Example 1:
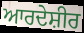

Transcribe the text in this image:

ਆਰਦੇਸ਼ੀਰ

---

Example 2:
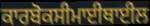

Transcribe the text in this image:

ਕਾਰਬੋਕਸੀਮਾਈਥਾਈਲ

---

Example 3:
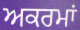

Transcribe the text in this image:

ਅਕਰਮਾਂ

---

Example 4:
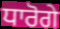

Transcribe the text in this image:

ਧਾਰੋਗੇ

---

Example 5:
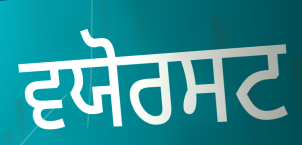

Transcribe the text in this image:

ਵਯੋਰਸਟ